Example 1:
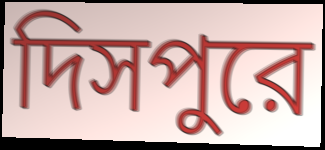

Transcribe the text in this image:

দিসপুরে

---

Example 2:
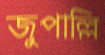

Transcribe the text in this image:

জুপাল্লি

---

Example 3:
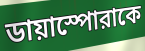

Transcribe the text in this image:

ডায়াস্পোরাকে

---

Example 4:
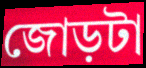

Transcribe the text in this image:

জোড়টা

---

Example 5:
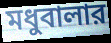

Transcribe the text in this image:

মধুবালার